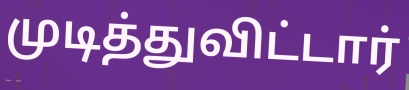
முடித்துவிட்டார்